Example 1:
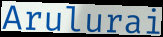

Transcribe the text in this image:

Arulurai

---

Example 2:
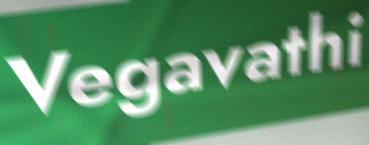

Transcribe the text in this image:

Vegavathi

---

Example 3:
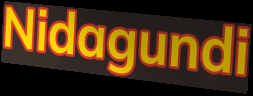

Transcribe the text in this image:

Nidagundi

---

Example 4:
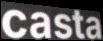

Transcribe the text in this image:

casta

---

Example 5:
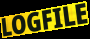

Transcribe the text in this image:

LOGFILE